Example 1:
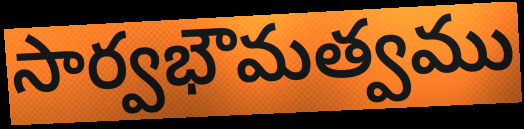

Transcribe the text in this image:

సార్వభౌమత్వము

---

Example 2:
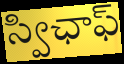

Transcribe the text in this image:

స్విఛాఫ్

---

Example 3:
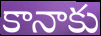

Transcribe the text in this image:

కానాకు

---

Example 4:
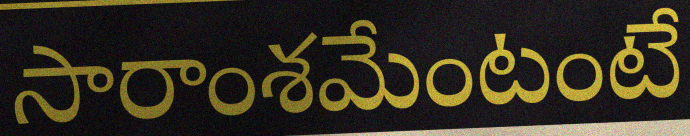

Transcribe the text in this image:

సారాంశమేంటంటే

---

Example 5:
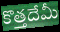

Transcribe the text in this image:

కొత్తదేమీ